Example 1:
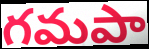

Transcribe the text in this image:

గమపా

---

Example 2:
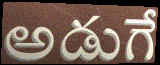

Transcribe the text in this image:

అడుగే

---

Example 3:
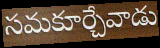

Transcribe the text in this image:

సమకూర్చేవాడు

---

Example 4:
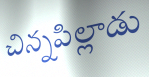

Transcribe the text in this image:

చిన్నపిల్లాడు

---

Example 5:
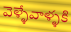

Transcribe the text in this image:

వెళ్ళేవాళ్ళకి